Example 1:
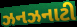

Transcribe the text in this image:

ઝનઝનાટી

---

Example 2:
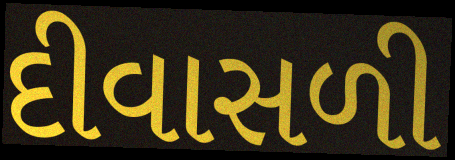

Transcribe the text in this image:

દીવાસળી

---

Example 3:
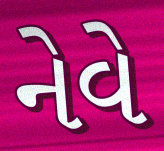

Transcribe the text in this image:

નેવે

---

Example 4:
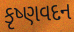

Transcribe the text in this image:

કૃષ્ણવદન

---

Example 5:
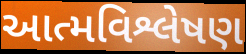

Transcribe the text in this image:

આત્મવિશ્લેષણ